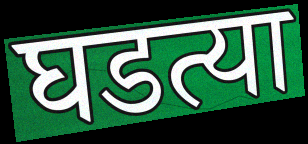
घडत्या